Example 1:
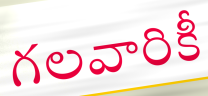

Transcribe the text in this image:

గలవారికీ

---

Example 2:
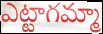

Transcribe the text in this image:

ఎట్టాగమ్మా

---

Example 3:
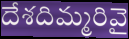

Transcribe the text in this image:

దేశదిమ్మరివై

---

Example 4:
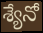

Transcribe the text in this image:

శ్యేనో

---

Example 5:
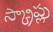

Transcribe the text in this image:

స్క్రాప్లు